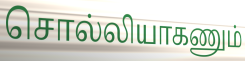
சொல்லியாகணும்